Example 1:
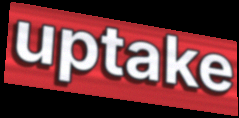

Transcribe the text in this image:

uptake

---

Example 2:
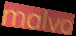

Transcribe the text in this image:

malvo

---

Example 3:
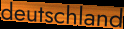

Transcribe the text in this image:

deutschland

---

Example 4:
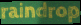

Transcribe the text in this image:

raindrop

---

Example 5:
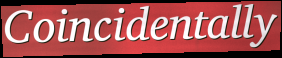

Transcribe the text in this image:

Coincidentally